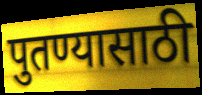
पुतण्यासाठी